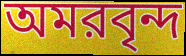
অমরবৃন্দ